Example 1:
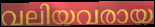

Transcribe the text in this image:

വലിയവരായ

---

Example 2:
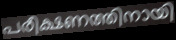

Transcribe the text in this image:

പരീക്ഷണത്തിനായി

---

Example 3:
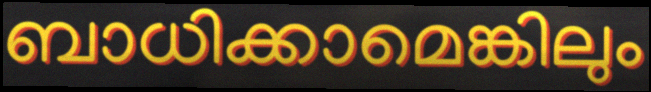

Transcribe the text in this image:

ബാധിക്കാമെങ്കിലും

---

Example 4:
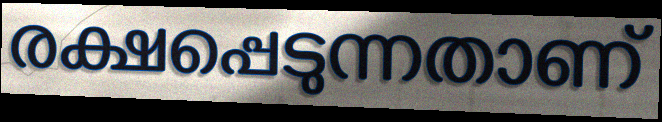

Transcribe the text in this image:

രക്ഷപ്പെടുന്നതാണ്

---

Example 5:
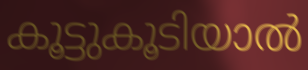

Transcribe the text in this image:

കൂട്ടുകൂടിയാൽ